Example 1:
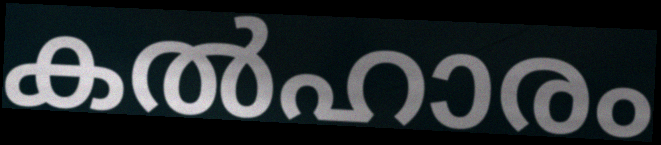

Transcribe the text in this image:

കൽഹാരം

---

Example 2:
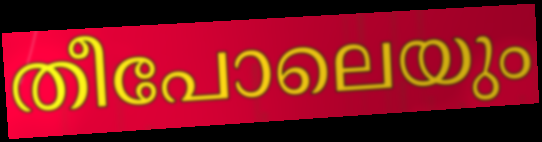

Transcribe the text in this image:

തീപോലെയും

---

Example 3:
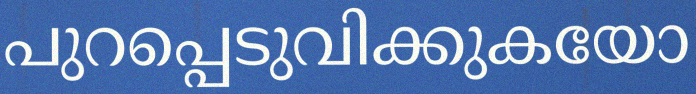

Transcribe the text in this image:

പുറപ്പെടുവിക്കുകയോ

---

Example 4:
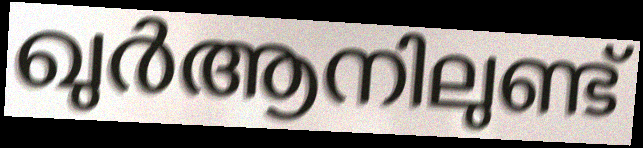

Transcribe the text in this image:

ഖുർആനിലുണ്ട്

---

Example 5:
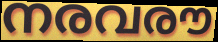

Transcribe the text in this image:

നരവരൗ